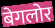
बेगलोर